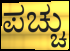
ಪಚ್ಚು